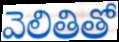
వెలితితో